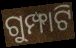
ଗୁମ୍ଫାଟି